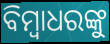
ବିମ୍ୱାଧରଙ୍କୁ